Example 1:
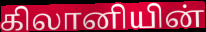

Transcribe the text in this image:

கிலானியின்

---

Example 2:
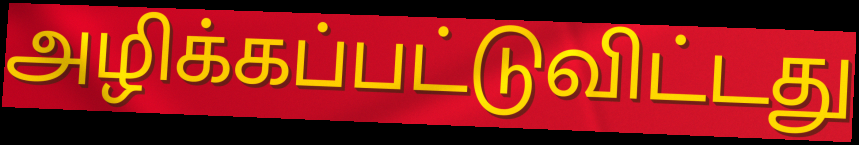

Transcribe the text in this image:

அழிக்கப்பட்டுவிட்டது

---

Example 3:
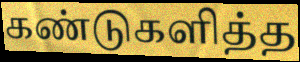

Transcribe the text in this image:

கண்டுகளித்த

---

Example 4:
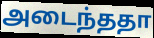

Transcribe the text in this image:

அடைந்ததா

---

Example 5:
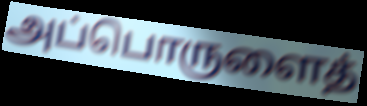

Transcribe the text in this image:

அப்பொருளைத்